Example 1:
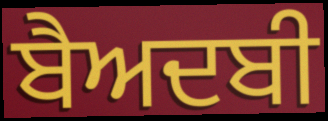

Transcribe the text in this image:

ਬੈਅਦਬੀ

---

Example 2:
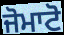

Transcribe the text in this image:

ਜੋਮਾਟੋ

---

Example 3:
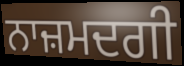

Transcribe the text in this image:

ਨਾਜ਼ਮਦਗੀ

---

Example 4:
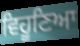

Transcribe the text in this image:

ਵਿਹੂਣਿਆ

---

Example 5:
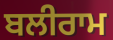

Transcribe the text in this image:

ਬਲੀਰਾਮ